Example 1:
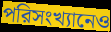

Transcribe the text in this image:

পরিসংখ্যানেও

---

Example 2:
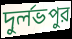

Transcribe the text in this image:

দুর্লভপুর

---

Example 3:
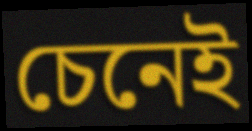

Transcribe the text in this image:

চেনেই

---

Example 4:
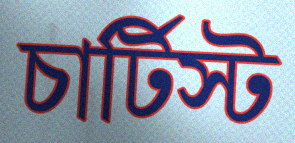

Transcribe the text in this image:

চার্টিস্ট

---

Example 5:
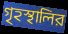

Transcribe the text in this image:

গৃহস্থালির